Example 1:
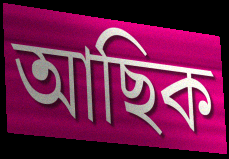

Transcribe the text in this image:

আছিক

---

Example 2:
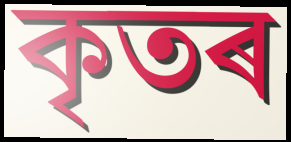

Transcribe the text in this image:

কৃতৰ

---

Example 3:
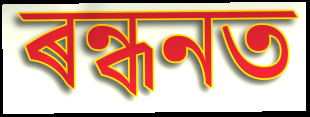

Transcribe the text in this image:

ৰন্ধনত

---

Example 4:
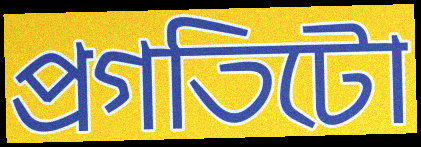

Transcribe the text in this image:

প্ৰগতিটো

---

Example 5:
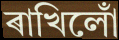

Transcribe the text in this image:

ৰাখিলোঁ